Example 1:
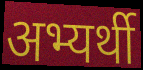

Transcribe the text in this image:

अभ्यर्थी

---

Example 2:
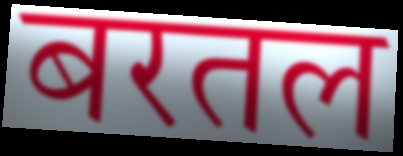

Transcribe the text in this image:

बरतल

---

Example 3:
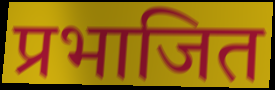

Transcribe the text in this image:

प्रभाजित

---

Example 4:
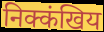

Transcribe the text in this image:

निक्कंखिय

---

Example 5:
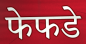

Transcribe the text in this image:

फेफडे